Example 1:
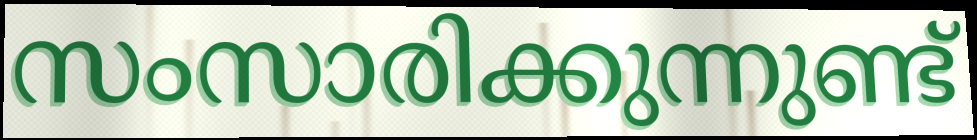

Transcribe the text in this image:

സംസാരിക്കുന്നുണ്ട്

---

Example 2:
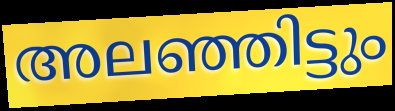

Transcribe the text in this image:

അലഞ്ഞിട്ടും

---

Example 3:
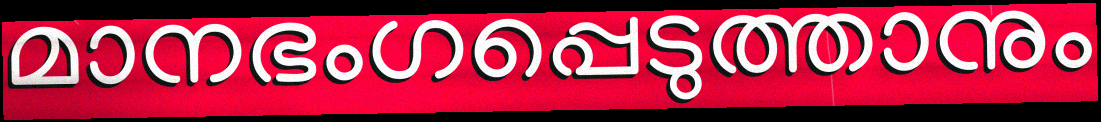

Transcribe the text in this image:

മാനഭംഗപ്പെടുത്താനും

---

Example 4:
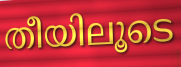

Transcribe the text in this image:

തീയിലൂടെ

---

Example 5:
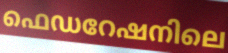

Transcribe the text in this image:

ഫെഡറേഷനിലെ